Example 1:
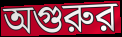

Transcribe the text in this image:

অগুরুর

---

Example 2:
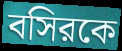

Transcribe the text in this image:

বসিরকে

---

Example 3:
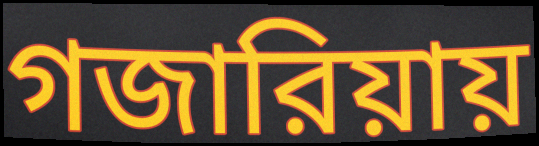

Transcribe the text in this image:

গজারিয়ায়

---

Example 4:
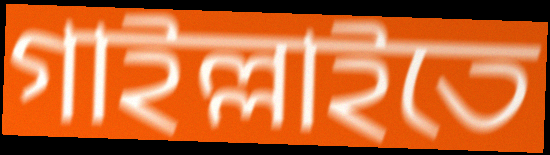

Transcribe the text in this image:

গাইল্লাইতে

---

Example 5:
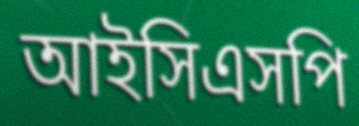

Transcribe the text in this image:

আইসিএসপি